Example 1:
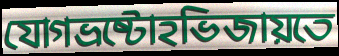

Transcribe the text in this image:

যোগভ্রষ্টোহভিজায়তে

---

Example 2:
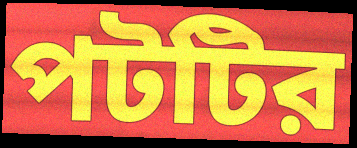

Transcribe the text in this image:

পটটির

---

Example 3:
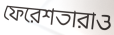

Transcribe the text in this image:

ফেরেশতারাও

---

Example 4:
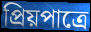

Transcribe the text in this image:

প্রিয়পাত্রে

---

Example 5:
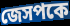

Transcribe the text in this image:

জেসপকে